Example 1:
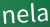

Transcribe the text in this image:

nela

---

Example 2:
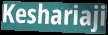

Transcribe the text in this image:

Keshariaji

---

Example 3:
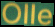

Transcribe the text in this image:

Olle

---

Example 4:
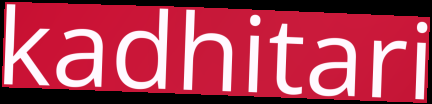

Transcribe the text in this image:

kadhitari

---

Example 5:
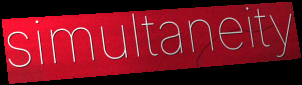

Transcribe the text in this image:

simultaneity